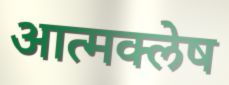
आत्मक्लेष